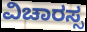
ವಿಚಾರಸ್ಸ